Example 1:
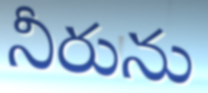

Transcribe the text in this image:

నీరును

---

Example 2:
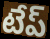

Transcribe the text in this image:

టేప్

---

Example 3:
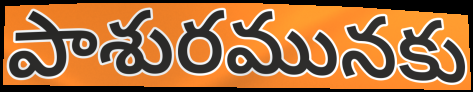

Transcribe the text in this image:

పాశురమునకు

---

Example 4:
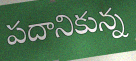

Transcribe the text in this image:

పదానికున్న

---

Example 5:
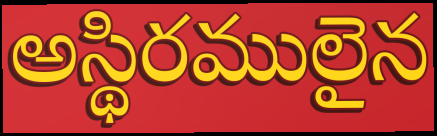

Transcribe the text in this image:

అస్థిరములైన